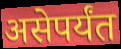
असेपर्यंत